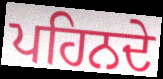
ਪਹਿਨਦੇ